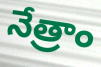
నేత్రాం